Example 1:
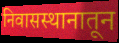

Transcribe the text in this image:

निवासस्थानातून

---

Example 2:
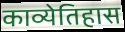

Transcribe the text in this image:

काव्येतिहास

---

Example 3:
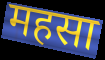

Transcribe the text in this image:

महसा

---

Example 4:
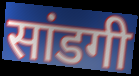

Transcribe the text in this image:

सांडगी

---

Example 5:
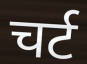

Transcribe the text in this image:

चर्ट